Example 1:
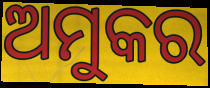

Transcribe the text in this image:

ଅମୁକର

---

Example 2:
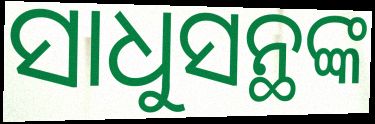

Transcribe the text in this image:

ସାଧୁସନ୍ଥଙ୍କ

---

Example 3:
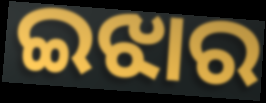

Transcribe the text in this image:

ଇଝାର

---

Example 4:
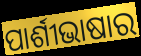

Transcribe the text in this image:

ପାର୍ଶୀଭାଷାର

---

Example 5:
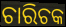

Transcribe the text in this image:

ଚାରିଚକ